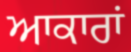
ਆਕਾਰਾਂ